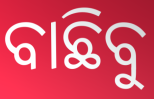
ବାଛିବୁ